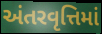
અંતરવૃત્તિમાં